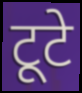
टूटे